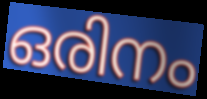
ഒരിനം